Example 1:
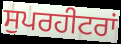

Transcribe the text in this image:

ਸੁਪਰਹੀਟਰਾਂ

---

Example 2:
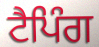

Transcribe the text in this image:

ਟੈਪਿੰਗ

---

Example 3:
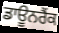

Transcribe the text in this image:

ਡਾਊਨਰੈਂਕ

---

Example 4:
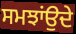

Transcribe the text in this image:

ਸਮਝਾਂਉਦੇ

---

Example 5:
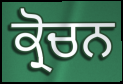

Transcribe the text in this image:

ਕ੍ਰੋਚਨ